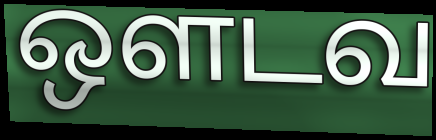
ஔடவ